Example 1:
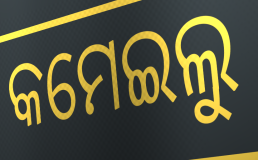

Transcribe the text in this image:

କମେଇଲୁ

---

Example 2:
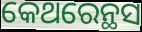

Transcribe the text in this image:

କେଥରେନ୍ଥସ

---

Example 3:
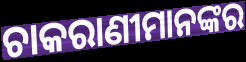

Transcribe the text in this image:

ଚାକରାଣୀମାନଙ୍କର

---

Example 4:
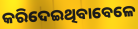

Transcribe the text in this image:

କରିଦେଇଥିବାବେଳେ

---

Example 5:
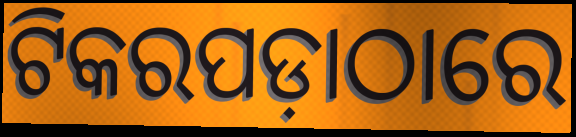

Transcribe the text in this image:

ଟିକରପଡ଼ାଠାରେ